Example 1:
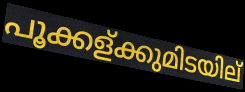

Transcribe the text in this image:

പൂക്കള്ക്കുമിടയില്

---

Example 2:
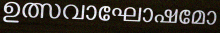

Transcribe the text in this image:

ഉത്സവാഘോഷമോ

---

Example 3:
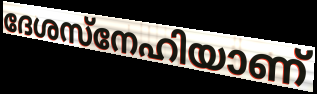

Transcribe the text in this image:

ദേശസ്നേഹിയാണ്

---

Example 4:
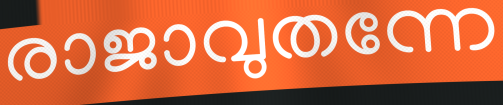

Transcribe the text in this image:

രാജാവുതന്നേ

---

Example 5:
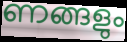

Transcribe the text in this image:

ണങ്ങളും